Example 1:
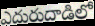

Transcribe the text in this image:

ఎదురుదాడిలో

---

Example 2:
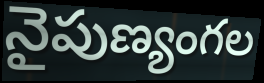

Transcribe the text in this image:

నైపుణ్యంగల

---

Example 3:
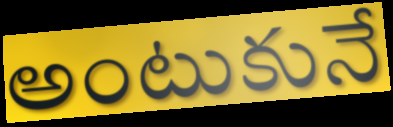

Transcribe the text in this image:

అంటుకునే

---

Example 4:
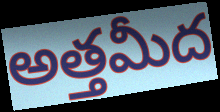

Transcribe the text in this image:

అత్తమీద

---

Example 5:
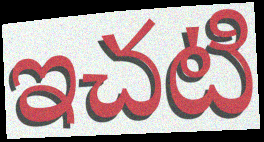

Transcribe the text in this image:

ఇచటి